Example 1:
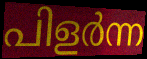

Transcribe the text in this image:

പിളർന്ന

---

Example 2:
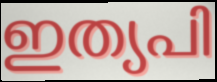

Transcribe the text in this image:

ഇത്യപി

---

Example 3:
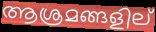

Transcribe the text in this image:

ആശ്രമങ്ങളില്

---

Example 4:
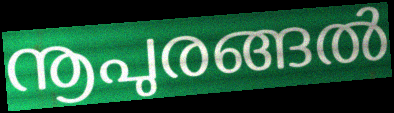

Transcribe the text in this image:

നൂപുരങ്ങൽ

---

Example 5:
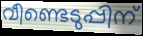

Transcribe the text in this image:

വീണ്ടെടുപ്പിന്